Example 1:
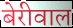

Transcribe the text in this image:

बेरीवाल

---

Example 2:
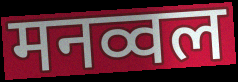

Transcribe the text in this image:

मनव्वल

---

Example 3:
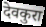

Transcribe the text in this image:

देवकुरा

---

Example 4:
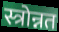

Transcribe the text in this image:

स्त्रोन्नत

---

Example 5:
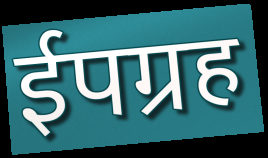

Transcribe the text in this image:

ईपग्रह